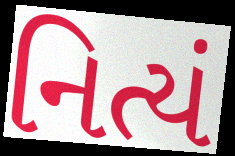
નિત્યં